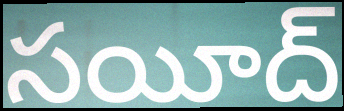
సయీద్